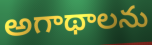
అగాథాలను